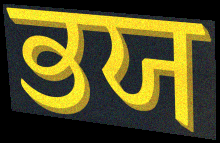
ਭਯ